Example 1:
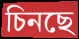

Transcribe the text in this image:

চিনছে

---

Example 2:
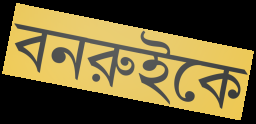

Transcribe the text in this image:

বনরুইকে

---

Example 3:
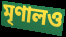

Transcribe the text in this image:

মৃণালও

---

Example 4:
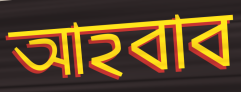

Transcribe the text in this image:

আহবাব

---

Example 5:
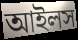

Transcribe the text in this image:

আইলস